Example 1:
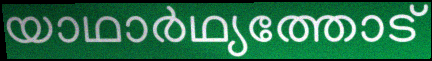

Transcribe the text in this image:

യാഥാർഥ്യത്തോട്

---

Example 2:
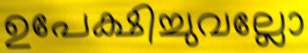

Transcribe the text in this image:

ഉപേക്ഷിച്ചുവല്ലോ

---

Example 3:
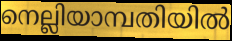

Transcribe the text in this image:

നെല്ലിയാമ്പതിയിൽ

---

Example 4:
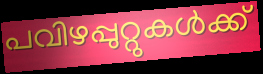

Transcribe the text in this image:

പവിഴപ്പുറ്റുകൾക്ക്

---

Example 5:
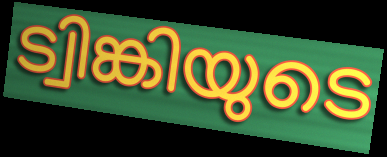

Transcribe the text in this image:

ട്വിങ്കിയുടെ